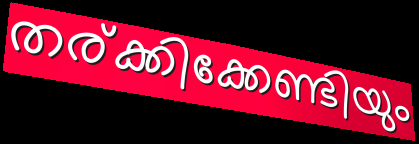
തര്ക്കിക്കേണ്ടിയും